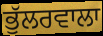
ਭੁੱਲਰਵਾਲਾ